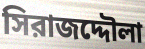
সিরাজদ্দৌলা